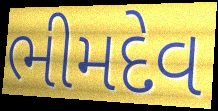
ભીમદેવ